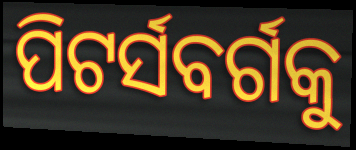
ପିଟର୍ସବର୍ଗକୁ